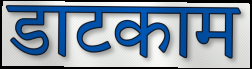
डाटकाम